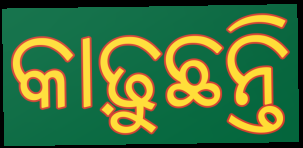
କାଢ଼ୁଛନ୍ତି